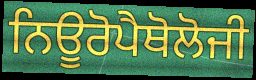
ਨਿਊਰੋਪੈਥੋਲੋਜੀ